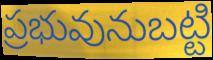
ప్రభువునుబట్టి